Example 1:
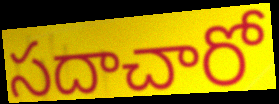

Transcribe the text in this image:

సదాచారో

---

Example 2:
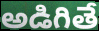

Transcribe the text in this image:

అడిగితే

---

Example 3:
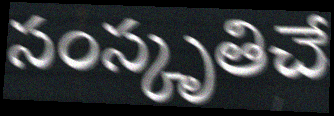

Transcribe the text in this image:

సంస్కృతిచే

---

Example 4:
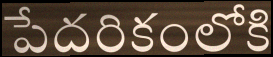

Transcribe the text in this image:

పేదరికంలోకి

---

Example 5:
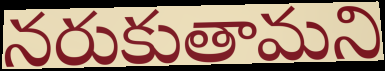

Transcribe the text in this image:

నరుకుతామని